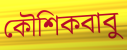
কৌশিকবাবু